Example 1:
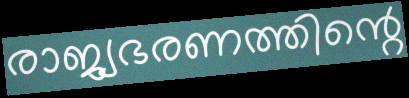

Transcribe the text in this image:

രാജ്യഭരണത്തിന്റെ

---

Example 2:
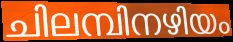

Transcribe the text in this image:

ചിലമ്പിനഴിയം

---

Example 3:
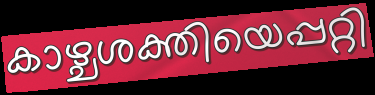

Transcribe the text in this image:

കാഴ്ചശക്തിയെപ്പറ്റി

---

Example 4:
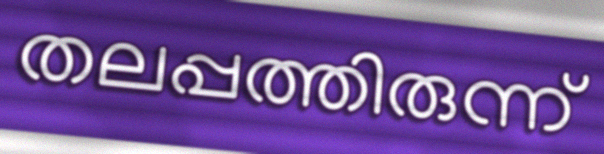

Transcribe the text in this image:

തലപ്പത്തിരുന്ന്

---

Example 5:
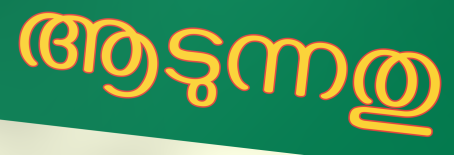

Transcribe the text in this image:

ആടുന്നതു